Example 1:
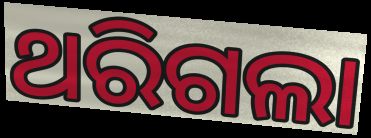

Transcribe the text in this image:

ଥରିଗଲା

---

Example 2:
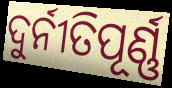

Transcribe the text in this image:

ଦୁର୍ନୀତିପୂର୍ଣ୍ଣ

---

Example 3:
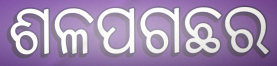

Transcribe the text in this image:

ଶଳପଗଛର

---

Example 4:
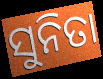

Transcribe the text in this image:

ସୁନିତା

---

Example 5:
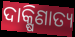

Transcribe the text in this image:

ଦାକ୍ଷିଣାତ୍ୟ